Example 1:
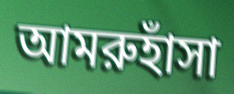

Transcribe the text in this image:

আমরুহাঁসা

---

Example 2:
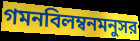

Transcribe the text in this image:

গমনবিলম্বনমনুসর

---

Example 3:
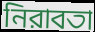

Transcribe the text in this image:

নিরাবতা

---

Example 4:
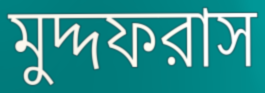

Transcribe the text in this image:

মুদ্দফরাস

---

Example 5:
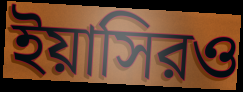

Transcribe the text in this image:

ইয়াসিরও